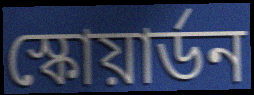
স্কোয়ার্ডন